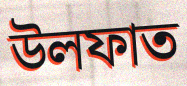
উলফাত